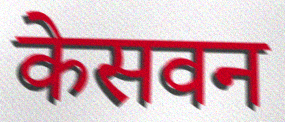
केसवन